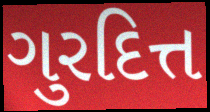
ગુરદિત્ત